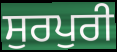
ਸੁਰਪੁਰੀ